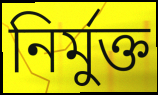
নির্মুক্ত